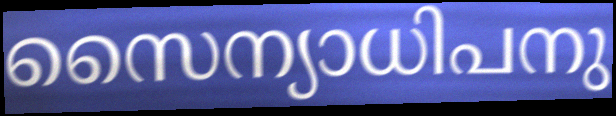
സൈന്യാധിപനു